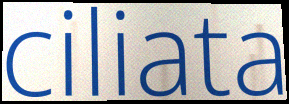
ciliata